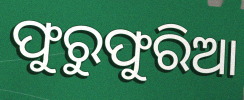
ଫୁରୁଫୁରିଆ